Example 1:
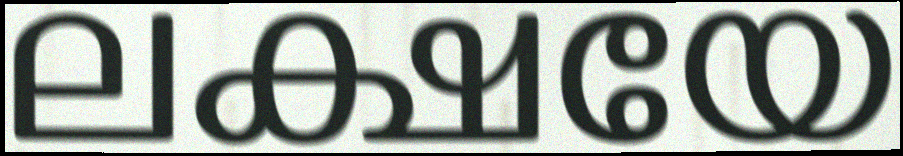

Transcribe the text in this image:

ലക്ഷയേ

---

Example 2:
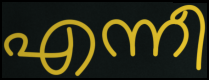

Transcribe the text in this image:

എന്നീ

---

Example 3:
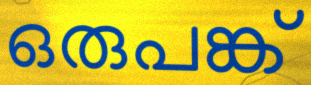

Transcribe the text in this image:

ഒരുപങ്ക്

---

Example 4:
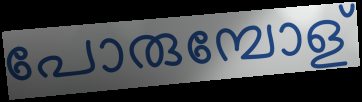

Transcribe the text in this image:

പോരുമ്പോള്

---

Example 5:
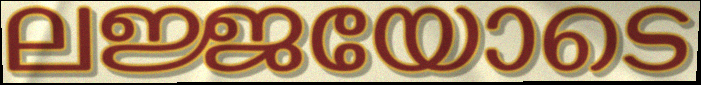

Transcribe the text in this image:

ലജ്ജയോടെ